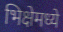
भिक्षेमध्ये